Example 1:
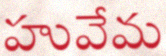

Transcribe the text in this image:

హువేమ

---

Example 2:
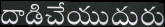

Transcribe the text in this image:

దాడిచేయుదురు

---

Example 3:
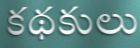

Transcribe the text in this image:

కథకులు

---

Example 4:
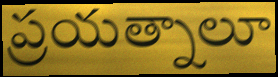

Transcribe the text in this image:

ప్రయత్నాలూ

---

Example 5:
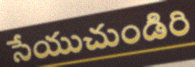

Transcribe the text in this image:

సేయుచుండిరి